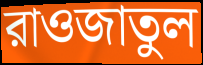
রাওজাতুল